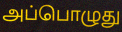
அப்பொழுது